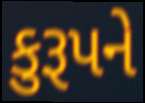
કુરૂપને